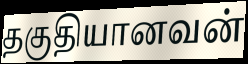
தகுதியானவன்